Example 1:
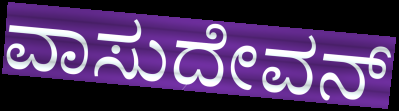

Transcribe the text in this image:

ವಾಸುದೇವನ್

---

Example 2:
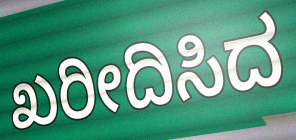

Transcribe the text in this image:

ಖರೀದಿಸಿದ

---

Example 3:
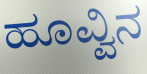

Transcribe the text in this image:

ಹೂವ್ವಿನ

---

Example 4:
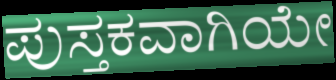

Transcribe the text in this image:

ಪುಸ್ತಕವಾಗಿಯೇ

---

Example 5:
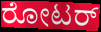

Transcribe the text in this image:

ರೋಟರ್